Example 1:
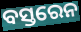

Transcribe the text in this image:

ବସ୍ତରେନ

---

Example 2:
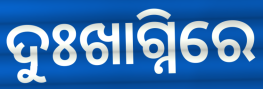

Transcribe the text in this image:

ଦୁଃଖାଗ୍ନିରେ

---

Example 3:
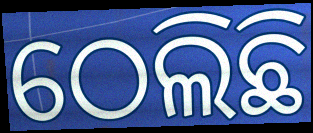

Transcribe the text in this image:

ଠେଲିଛି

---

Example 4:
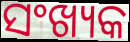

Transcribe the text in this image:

ସଂଖ୍ୟକ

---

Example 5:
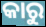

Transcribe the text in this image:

କାରୁ